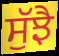
ਸੁੱਝੈ